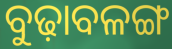
ବୁଢ଼ାବଳଙ୍ଗ